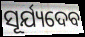
ସୂର୍ଯ୍ୟଦେବ